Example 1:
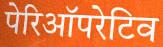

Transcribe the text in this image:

पेरिऑपरेटिव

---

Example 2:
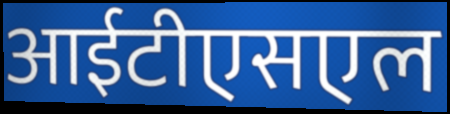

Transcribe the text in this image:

आईटीएसएल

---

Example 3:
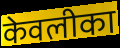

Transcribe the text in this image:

केवलीका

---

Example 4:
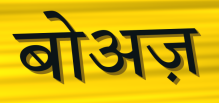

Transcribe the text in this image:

बोअज़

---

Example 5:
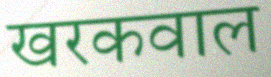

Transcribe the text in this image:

खरकवाल